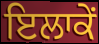
ਇਲਾਕੇਂ